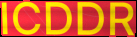
ICDDR